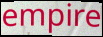
empire